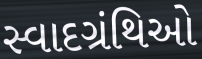
સ્વાદગ્રંથિઓ